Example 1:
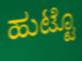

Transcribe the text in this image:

ಹುಟ್ಟೊ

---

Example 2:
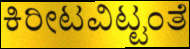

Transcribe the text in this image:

ಕಿರೀಟವಿಟ್ಟಂತೆ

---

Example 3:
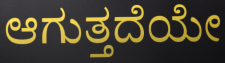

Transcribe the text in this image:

ಆಗುತ್ತದೆಯೇ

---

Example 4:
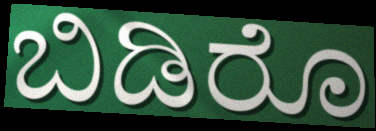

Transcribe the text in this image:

ಬಿಡಿರೊ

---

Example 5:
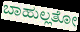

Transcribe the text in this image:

ಬಾಹುಲ್ಲತೋ